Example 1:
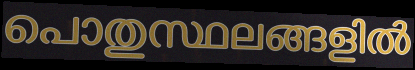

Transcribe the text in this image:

പൊതുസ്ഥലങ്ങളിൽ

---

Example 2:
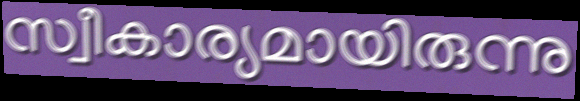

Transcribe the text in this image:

സ്വീകാര്യമായിരുന്നു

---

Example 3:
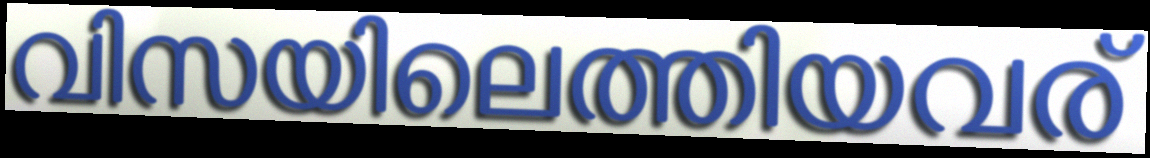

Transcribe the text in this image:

വിസയിലെത്തിയവര്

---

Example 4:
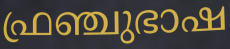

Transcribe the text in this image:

ഫ്രഞ്ചുഭാഷ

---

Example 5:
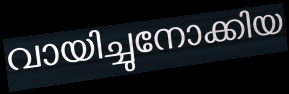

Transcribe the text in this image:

വായിച്ചുനോക്കിയ